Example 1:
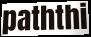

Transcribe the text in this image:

paththi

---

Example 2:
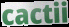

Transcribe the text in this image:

cactii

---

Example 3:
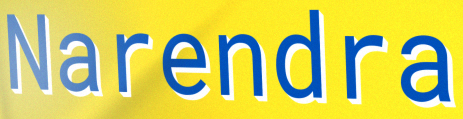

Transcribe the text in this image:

Narendra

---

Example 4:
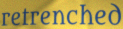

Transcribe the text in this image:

retrenched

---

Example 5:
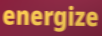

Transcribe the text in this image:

energize